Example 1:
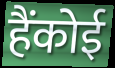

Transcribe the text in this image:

हैंकोई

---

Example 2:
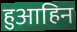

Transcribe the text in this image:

हुआहिन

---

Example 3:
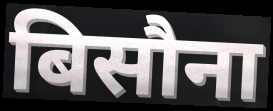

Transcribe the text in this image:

बिसौना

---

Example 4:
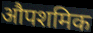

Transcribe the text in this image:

औपशमिक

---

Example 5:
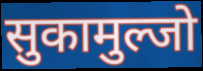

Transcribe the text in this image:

सुकामुल्जो